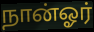
நான்ஓர்